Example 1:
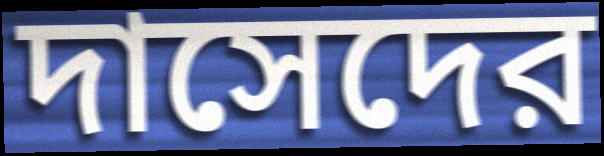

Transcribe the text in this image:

দাসেদের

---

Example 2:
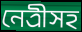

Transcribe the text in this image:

নেত্রীসহ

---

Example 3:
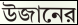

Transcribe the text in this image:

উজানের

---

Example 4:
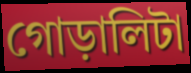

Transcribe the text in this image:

গোড়ালিটা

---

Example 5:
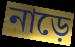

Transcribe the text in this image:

নাড়ে